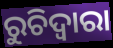
ରୁଚିଦ୍ୱାରା